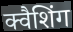
क्वैशिंग